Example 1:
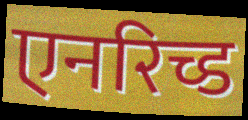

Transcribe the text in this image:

एनरिच्ड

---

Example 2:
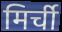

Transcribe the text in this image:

मिर्ची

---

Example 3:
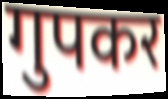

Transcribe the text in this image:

गुपकर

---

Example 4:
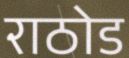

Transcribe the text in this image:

राठोड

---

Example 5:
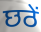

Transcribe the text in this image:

छठें